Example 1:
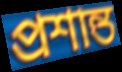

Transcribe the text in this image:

প্রশান্ত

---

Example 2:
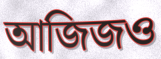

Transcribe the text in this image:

আজিজও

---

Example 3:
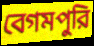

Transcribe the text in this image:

বেগমপুরি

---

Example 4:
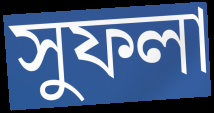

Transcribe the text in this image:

সুফলা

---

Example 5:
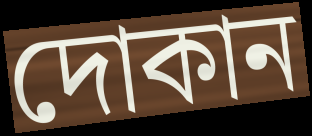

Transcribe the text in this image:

দোকান